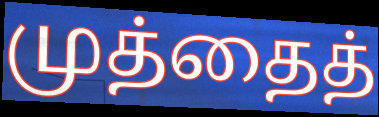
முத்தைத்